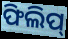
ଫିଲିପ୍